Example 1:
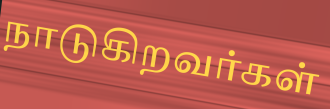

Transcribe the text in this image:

நாடுகிறவர்கள்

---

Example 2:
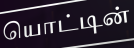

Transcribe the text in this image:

யொட்டின்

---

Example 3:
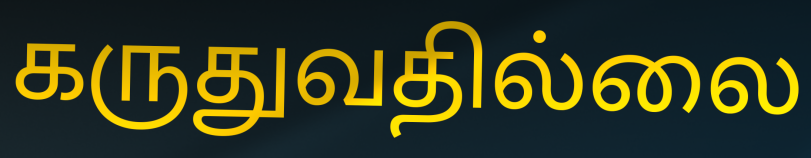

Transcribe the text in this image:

கருதுவதில்லை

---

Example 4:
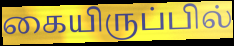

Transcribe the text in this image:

கையிருப்பில்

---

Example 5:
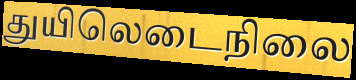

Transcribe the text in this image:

துயிலெடைநிலை